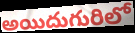
అయిదుగురిలో